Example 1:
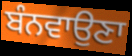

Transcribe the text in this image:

ਬੰਨਵਾਉਣਾ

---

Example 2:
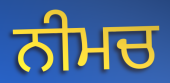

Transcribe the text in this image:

ਨੀਮਚ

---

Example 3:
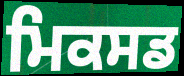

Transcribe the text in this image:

ਮਿਕਸਡ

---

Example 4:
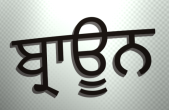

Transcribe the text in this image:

ਬ੍ਰਾਊਨ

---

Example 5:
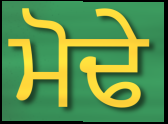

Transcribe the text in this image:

ਮੋਢੇ